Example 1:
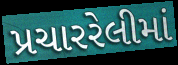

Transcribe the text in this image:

પ્રચારરેલીમાં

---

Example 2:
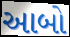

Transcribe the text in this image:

આબો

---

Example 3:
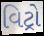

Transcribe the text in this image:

વિટ્રો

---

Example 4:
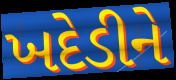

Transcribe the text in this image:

ખદેડીને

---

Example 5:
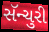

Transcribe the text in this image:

સૅન્ચુરી